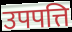
उपपत्ति